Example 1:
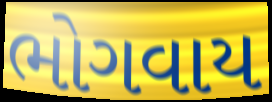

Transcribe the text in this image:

ભોગવાય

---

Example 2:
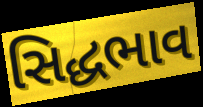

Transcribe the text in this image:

સિદ્ધભાવ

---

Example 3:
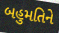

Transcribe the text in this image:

બહુમતિને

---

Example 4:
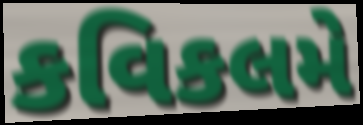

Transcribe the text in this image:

કવિકલમે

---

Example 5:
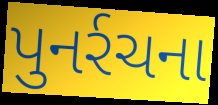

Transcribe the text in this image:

પુનર્રચના